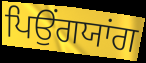
ਪਿਉਂਗਯਾਂਗ